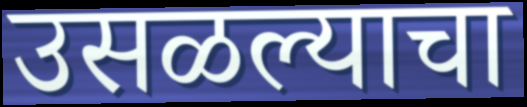
उसळल्याचा